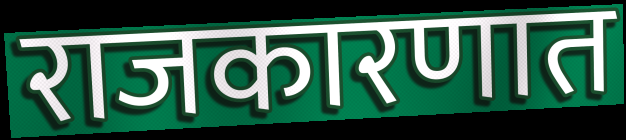
राजकारणात